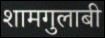
शामगुलाबी